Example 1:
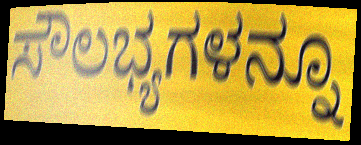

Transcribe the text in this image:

ಸೌಲಭ್ಯಗಳನ್ನೂ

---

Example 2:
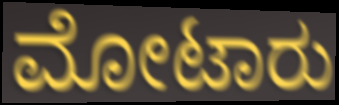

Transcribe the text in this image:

ಮೋಟಾರು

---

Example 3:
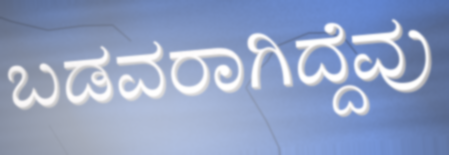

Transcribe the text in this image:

ಬಡವರಾಗಿದ್ದೆವು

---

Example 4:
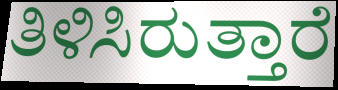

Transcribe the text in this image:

ತಿಳಿಸಿರುತ್ತಾರೆ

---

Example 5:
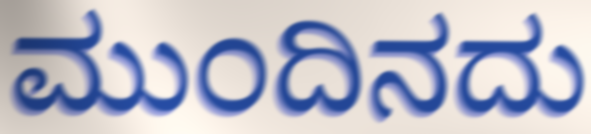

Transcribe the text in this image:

ಮುಂದಿನದು